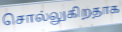
சொல்லுகிறதாக